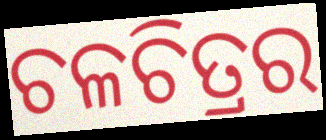
ଚଳଚିତ୍ରର